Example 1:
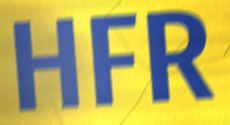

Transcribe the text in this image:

HFR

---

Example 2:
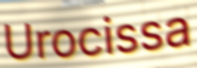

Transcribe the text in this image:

Urocissa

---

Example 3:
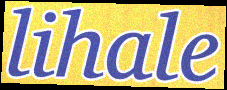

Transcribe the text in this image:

lihale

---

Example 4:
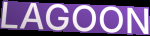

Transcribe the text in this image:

LAGOON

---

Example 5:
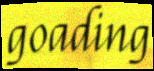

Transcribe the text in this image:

goading